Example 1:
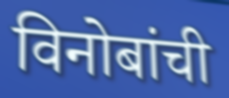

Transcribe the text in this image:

विनोबांची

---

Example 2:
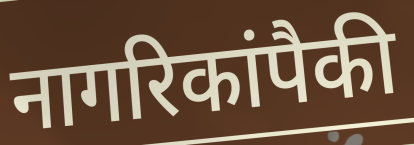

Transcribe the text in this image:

नागरिकांपैकी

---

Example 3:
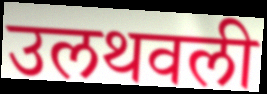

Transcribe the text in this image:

उलथवली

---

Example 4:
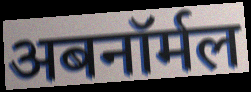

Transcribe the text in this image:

अबनॉर्मल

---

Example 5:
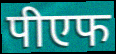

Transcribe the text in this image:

पीएफ